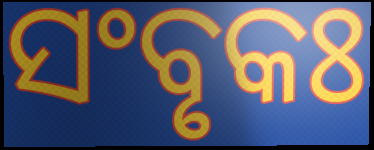
ସଂବୃକଃ